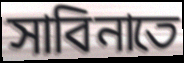
সাবিনাতে